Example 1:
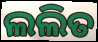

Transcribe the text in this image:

ଲଲିତ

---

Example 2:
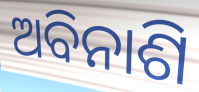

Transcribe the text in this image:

ଅବିନାଶି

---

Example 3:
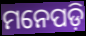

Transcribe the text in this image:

ମନେପଡ଼ି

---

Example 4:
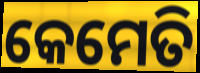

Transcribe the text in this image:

କେମେତି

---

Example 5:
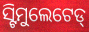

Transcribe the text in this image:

ସ୍ଟିମୁଲେଟେଡ୍